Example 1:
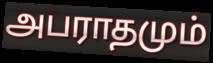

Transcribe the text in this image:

அபராதமும்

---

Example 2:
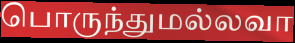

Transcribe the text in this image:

பொருந்துமல்லவா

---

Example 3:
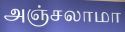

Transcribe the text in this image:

அஞ்சலாமா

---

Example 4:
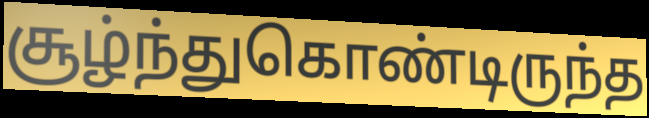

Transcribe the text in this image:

சூழ்ந்துகொண்டிருந்த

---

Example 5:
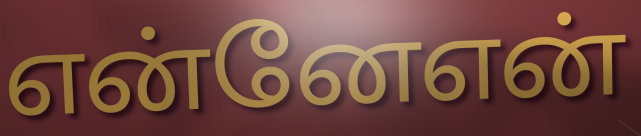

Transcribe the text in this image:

என்னேஎன்